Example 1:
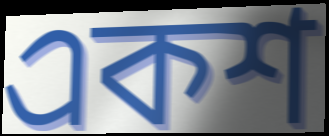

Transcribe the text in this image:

একশ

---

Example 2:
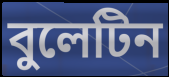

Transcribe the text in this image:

বুলেটিন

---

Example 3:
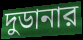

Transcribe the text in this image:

দুডানার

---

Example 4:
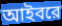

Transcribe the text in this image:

আইবরে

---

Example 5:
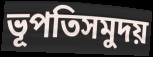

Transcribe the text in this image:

ভূপতিসমুদয়